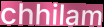
chhilam